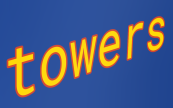
towers